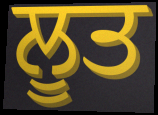
ਲੂਤ